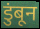
डुंबून